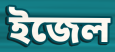
ইজেল